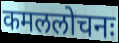
कमललोचनः